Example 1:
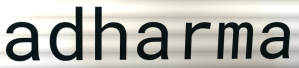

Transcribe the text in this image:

adharma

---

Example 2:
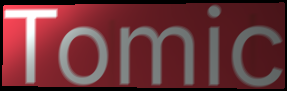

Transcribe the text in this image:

Tomic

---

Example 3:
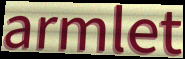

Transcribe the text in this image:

armlet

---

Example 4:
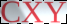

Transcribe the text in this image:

CXY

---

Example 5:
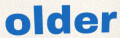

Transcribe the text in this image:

older